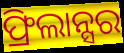
ଫ୍ରିଲାନ୍ସର